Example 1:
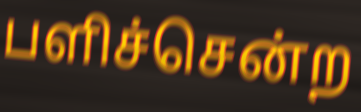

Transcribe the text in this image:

பளிச்சென்ற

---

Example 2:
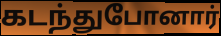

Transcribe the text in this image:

கடந்துபோனார்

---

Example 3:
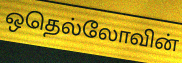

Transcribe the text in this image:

ஒதெல்லோவின்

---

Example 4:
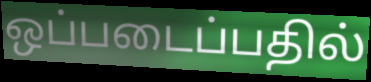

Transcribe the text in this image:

ஒப்படைப்பதில்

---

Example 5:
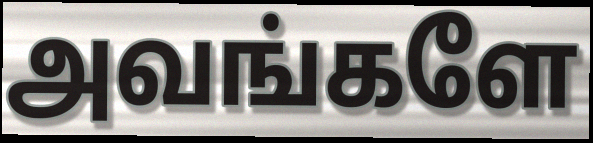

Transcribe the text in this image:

அவங்களே